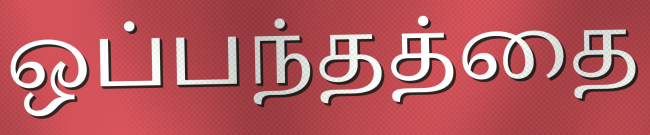
ஒப்பந்தத்தை